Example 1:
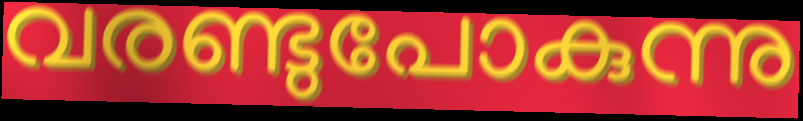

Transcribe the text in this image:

വരണ്ടുപോകുന്നു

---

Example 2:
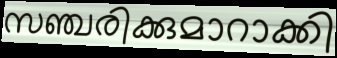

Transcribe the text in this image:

സഞ്ചരിക്കുമാറാക്കി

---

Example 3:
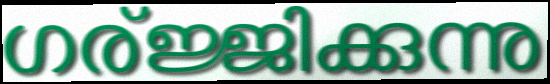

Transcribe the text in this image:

ഗര്ജ്ജിക്കുന്നു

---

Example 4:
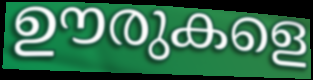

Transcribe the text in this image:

ഊരുകളെ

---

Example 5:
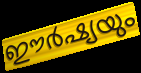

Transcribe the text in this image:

ഈർഷ്യയും